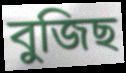
বুজিছ